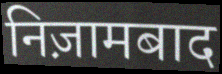
निज़ामबाद